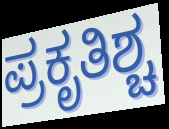
ಪ್ರಕೃತಿಶ್ಚ